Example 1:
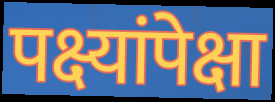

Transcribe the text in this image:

पक्ष्यांपेक्षा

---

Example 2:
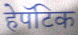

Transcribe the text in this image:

हेपॅटिक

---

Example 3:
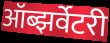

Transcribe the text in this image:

ऑब्झर्वेटरी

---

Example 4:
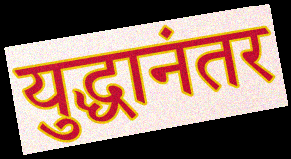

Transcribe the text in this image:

युद्धानंतर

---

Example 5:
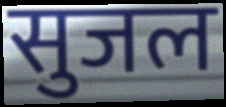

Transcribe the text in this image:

सुजल